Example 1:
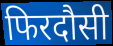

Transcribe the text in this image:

फिरदौसी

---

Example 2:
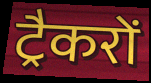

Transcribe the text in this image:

ट्रैकरों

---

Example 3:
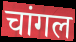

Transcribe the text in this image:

चांगल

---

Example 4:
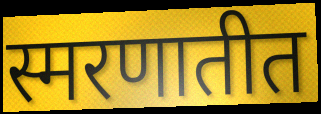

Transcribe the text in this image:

स्मरणातीत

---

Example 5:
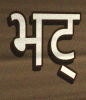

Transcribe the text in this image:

भट्